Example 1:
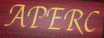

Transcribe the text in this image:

APERC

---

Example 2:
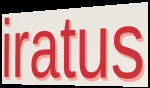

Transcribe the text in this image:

iratus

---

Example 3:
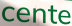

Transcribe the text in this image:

cente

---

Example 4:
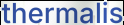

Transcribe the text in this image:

thermalis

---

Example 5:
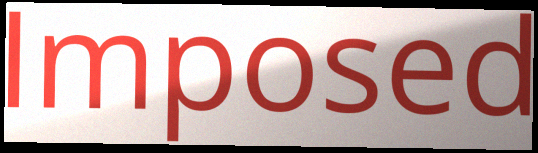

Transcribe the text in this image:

Imposed